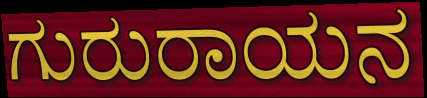
ಗುರುರಾಯನ